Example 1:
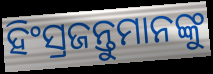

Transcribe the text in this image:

ହିଂସ୍ରଜନ୍ତୁମାନଙ୍କୁ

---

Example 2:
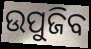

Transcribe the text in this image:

ଉପୁଜିବ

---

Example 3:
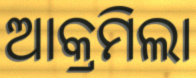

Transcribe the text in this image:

ଆକ୍ରମିଲା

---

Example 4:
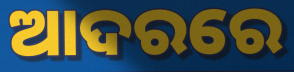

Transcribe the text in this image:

ଆଦରରେ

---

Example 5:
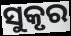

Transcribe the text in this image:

ସୁକୃର